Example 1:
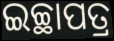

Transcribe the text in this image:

ଇଚ୍ଛାପତ୍ର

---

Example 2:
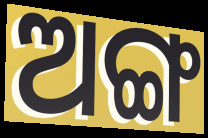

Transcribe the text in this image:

ଅଙ୍ଗ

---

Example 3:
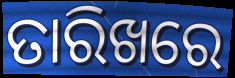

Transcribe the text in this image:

ତାରିଖରେ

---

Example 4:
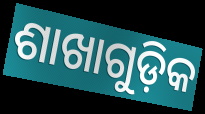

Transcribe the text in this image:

ଶାଖାଗୁଡ଼ିକ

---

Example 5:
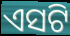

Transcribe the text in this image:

ଏସଟି